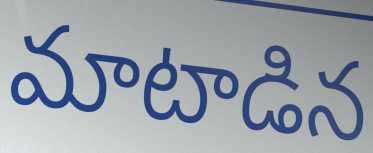
మాటాడిన